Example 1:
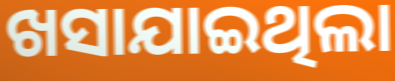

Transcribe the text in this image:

ଖସାଯାଇଥିଲା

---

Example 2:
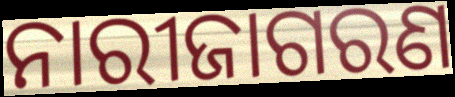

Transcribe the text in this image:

ନାରୀଜାଗରଣ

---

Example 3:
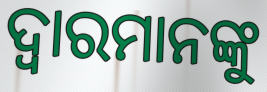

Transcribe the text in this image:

ଦ୍ୱାରମାନଙ୍କୁ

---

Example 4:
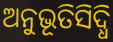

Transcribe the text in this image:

ଅନୁଭୂତିସିଦ୍ଧି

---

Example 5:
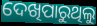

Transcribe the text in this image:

ଦେଖିପାରୁଥିଲୁ